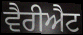
ਵੈਰੀਐਟ